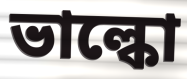
ভাল্কো